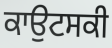
ਕਾਉਟਸਕੀ